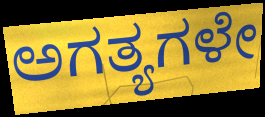
ಅಗತ್ಯಗಳೇ